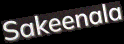
Sakeenala